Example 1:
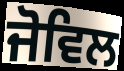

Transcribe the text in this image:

ਜੋਵਿਲ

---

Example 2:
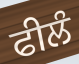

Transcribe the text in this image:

ਫੀਲੰ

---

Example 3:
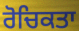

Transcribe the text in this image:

ਰੋਚਿਕਤਾ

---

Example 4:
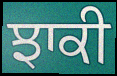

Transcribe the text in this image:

ਝਾਕੀ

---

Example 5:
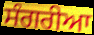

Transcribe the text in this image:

ਸੰਗਰੀਆ